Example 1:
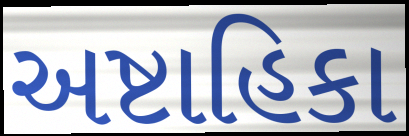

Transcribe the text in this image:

અષ્ટાહિકા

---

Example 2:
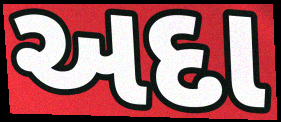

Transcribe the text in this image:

અદા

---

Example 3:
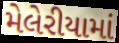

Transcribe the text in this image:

મેલેરીયામાં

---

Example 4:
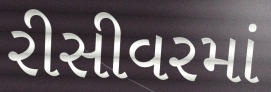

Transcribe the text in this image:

રીસીવરમાં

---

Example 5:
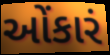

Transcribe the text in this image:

ઓંકારં